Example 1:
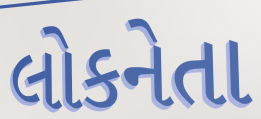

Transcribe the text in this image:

લોકનેતા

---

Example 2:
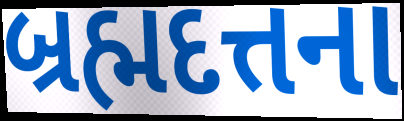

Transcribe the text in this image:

બ્રહ્મદત્તના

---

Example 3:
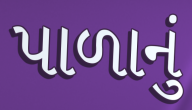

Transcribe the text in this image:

પાળાનું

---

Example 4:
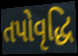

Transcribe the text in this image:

તપોવૃદ્ધિ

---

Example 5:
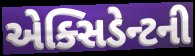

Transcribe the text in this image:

એક્સિડેન્ટની